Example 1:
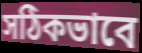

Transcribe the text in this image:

সঠিকভাবে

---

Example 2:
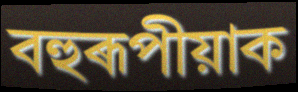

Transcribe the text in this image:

বহুৰূপীয়াক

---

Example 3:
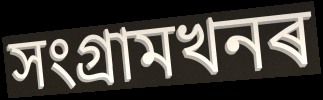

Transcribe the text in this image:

সংগ্ৰামখনৰ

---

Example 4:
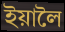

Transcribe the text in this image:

ইয়ালৈ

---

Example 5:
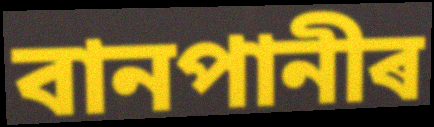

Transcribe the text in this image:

বানপানীৰ